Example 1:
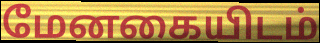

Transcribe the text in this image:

மேனகையிடம்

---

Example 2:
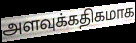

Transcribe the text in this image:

அளவுக்கதிகமாக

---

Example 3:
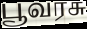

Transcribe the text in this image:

பூவரசு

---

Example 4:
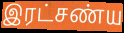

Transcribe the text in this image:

இரட்சண்ய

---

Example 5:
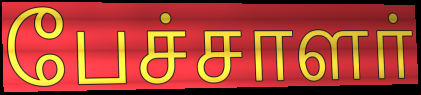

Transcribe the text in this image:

பேச்சாளர்